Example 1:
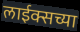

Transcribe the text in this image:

लाईक्सच्या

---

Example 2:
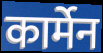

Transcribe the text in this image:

कार्मेन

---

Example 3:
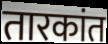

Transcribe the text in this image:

तारकांत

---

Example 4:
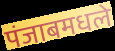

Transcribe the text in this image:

पंजाबमधले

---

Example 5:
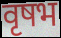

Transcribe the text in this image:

वृषभ